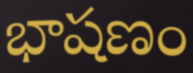
భాషణం